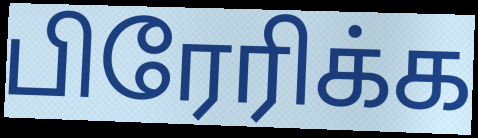
பிரேரிக்க